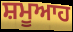
ਸ਼ਮੂਆਹ